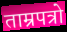
ताम्रपत्रो